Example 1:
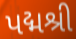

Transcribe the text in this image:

પદ્મશ્રી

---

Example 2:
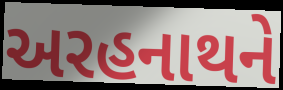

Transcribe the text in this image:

અરહનાથને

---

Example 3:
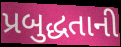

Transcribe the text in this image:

પ્રબુદ્ધતાની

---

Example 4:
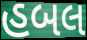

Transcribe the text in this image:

હબલ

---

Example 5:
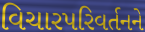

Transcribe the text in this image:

વિચારપરિવર્તનને